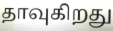
தாவுகிறது